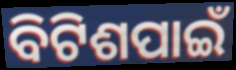
ବିଟିଶପାଇଁ